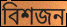
বিশজন